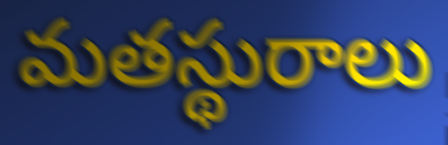
మతస్థురాలు